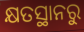
କ୍ଷତସ୍ଥାନରୁ